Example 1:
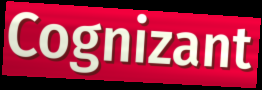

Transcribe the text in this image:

Cognizant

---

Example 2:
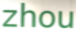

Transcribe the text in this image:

zhou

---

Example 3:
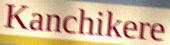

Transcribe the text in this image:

Kanchikere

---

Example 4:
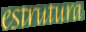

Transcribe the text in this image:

estrutura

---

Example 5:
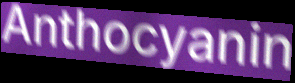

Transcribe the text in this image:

Anthocyanin